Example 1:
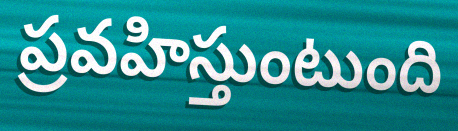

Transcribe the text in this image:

ప్రవహిస్తుంటుంది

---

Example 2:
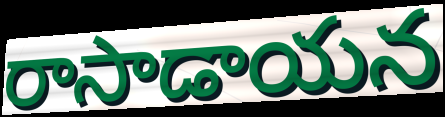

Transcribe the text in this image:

రాసాడాయన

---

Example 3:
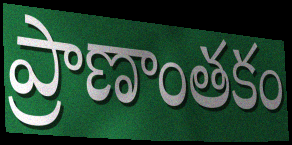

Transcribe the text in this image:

ప్రాణాంతకం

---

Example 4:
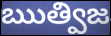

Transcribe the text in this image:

ఋత్విజ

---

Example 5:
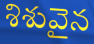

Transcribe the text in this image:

శిశువైన